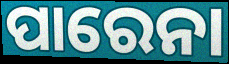
ପାରେନା